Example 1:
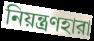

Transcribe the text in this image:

নিয়ন্ত্রণহারা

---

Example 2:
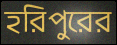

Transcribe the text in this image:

হরিপুরের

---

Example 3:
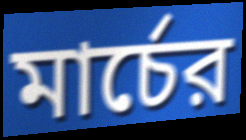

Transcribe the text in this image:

মার্চের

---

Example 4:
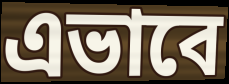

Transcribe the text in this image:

এভাবে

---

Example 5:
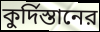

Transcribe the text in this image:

কুর্দিস্তানের